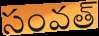
సంవత్